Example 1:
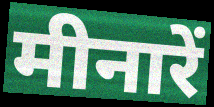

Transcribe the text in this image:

मीनारें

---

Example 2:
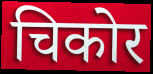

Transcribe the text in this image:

चिकोर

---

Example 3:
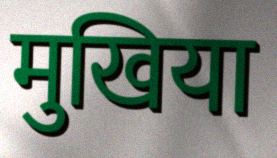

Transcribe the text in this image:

मुखिया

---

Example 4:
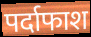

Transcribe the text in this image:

पर्दाफाश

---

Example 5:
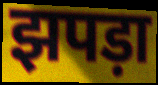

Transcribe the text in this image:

झपड़ा